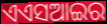
ଏଏସଆଇର